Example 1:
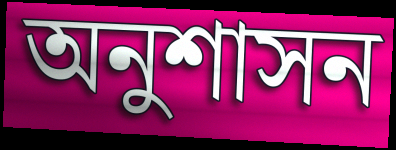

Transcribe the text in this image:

অনুশাসন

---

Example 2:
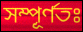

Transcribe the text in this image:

সম্পূর্ণতঃ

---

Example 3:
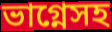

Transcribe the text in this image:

ভাগ্নেসহ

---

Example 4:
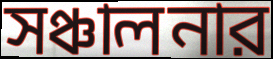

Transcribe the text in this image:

সঞ্চালনার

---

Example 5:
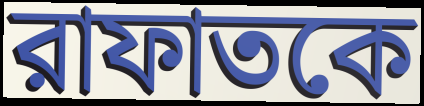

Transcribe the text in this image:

রাফাতকে